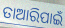
ତାଆରିପାଇଁ